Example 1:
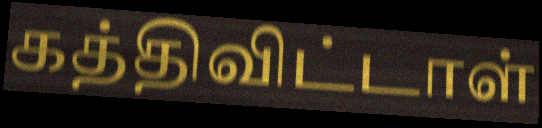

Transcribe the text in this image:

கத்திவிட்டாள்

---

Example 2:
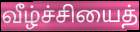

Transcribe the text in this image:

வீழ்ச்சியைத்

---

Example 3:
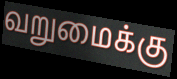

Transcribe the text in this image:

வறுமைக்கு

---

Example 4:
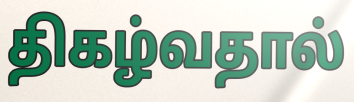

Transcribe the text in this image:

திகழ்வதால்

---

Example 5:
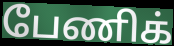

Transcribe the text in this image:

பேணிக்